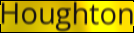
Houghton